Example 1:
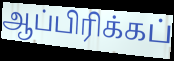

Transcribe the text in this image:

ஆப்பிரிக்கப்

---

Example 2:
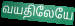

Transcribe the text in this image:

வயதிலேயே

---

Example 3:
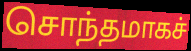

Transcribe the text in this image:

சொந்தமாகச்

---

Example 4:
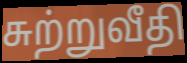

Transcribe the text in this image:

சுற்றுவீதி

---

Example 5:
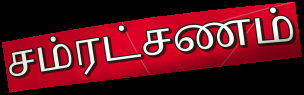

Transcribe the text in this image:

சம்ரட்சணம்